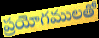
ప్రయోగములతో